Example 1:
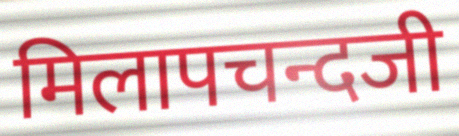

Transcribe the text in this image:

मिलापचन्दजी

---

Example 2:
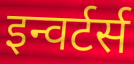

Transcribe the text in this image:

इन्वर्टर्स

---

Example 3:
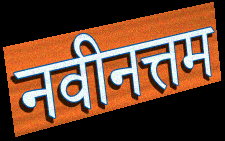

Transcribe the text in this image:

नवीनत्तम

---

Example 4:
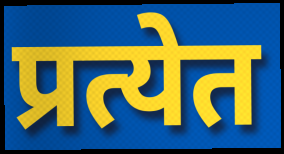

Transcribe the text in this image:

प्रत्येत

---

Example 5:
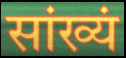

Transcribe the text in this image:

सांख्यं